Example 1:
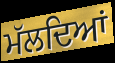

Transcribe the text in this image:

ਮੱਲਦਿਆਂ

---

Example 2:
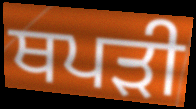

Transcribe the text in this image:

ਥਪੜੀ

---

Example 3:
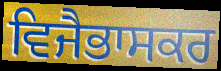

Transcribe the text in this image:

ਵਿਜੈਭਾਸਕਰ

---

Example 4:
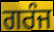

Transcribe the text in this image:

ਗਰੰਜ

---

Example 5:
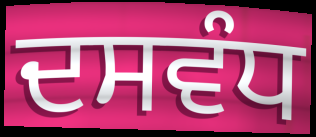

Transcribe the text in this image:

ਦਸਵੰਧ